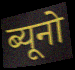
ब्यूनो